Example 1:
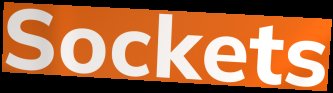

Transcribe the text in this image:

Sockets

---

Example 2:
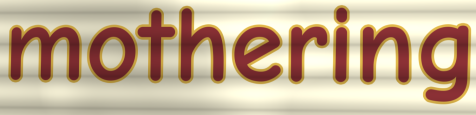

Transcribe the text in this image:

mothering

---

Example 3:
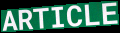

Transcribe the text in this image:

ARTICLE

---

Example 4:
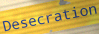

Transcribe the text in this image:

Desecration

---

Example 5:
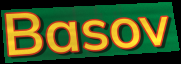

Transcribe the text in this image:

Basov